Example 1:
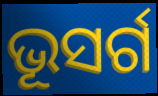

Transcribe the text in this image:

ଭୂସର୍ଗ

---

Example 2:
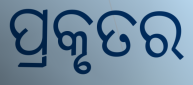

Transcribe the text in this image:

ପ୍ରକୃତର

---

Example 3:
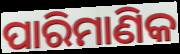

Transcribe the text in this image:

ପାରିମାଣିକ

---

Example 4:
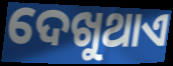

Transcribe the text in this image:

ଦେଖୁଥାଏ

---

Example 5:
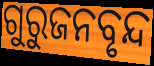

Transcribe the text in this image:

ଗୁରୁଜନବୃନ୍ଦ